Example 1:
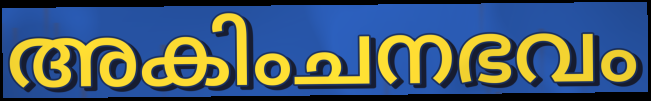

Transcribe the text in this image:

അകിംചനഭവം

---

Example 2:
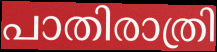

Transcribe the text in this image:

പാതിരാത്രി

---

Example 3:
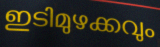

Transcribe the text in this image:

ഇടിമുഴക്കവും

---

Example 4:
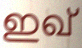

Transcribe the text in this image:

ഇഖ്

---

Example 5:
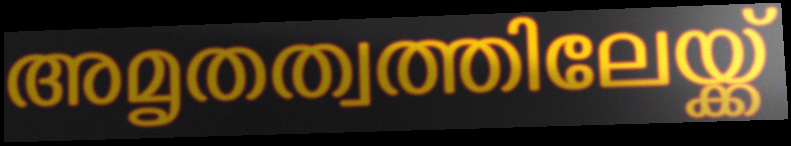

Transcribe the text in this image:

അമൃതത്വത്തിലേയ്ക്ക്